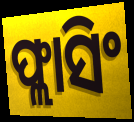
ଫ୍ଲାସିଂ